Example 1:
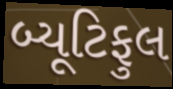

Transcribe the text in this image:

બ્યૂટિફુલ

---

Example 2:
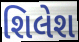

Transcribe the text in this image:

શિલેશ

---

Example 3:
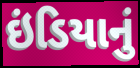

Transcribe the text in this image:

ઇંડિયાનું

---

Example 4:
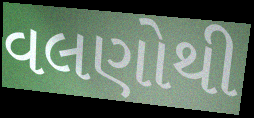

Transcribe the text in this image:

વલણોથી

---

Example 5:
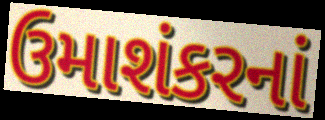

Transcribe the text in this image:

ઉમાશંકરનાં